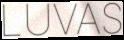
LUVAS